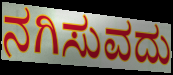
ನಗಿಸುವದು